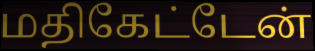
மதிகேட்டேன்